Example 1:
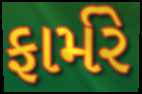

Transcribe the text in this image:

ફાર્મરે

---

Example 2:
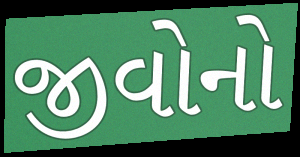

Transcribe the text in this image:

જીવોનો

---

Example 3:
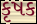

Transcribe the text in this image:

કૃષક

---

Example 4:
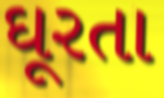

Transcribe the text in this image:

ઘૂરતા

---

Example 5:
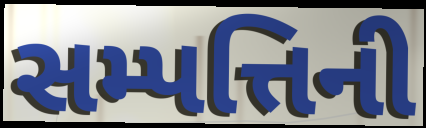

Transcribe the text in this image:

સમ્પત્તિની